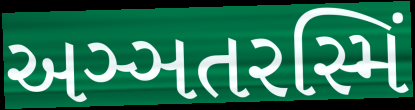
અઞ્ઞતરસ્મિં